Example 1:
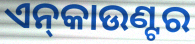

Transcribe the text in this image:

ଏନ୍‌କାଉଣ୍ଟର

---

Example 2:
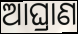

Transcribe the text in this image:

ଆଘ୍ରାଣ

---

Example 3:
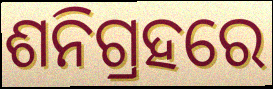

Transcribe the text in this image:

ଶନିଗ୍ରହରେ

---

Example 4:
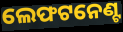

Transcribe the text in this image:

ଲେଫଟନେଣ୍ଟ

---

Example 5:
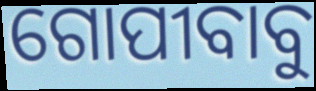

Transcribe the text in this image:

ଗୋପୀବାବୁ